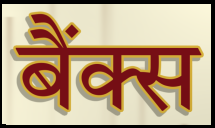
बैंक्‍स